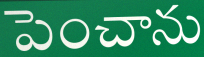
పెంచాను